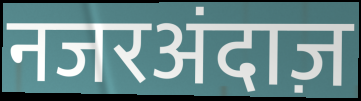
नजरअंदाज़